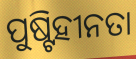
ପୁଷ୍ଟିହୀନତା